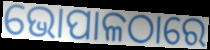
ଭୋପାଳଠାରେ